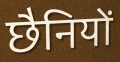
छैनियों